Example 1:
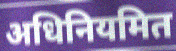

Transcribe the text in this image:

अधिनियमित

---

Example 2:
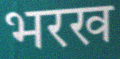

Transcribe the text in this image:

भरख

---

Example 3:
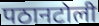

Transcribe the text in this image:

पठानटोली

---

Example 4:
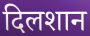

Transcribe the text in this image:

दिलशान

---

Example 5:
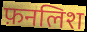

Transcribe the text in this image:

फ़नलिश